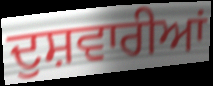
ਦੁਸ਼ਵਾਰੀਆਂ